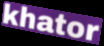
khator